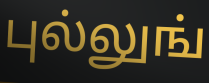
புல்லுங்